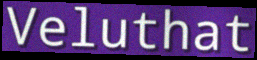
Veluthat